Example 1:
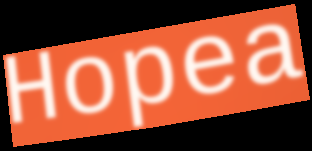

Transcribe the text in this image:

Hopea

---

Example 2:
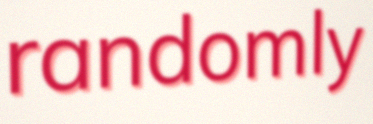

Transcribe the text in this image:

randomly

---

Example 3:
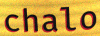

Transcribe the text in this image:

chalo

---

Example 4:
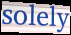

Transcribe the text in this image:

solely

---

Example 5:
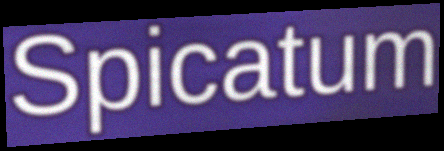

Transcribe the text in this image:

Spicatum